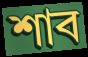
শাব